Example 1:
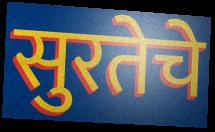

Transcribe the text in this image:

सुरतेचे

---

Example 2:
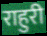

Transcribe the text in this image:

राहुरी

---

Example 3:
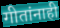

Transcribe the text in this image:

गीतांनाही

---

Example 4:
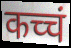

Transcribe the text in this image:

कच्चं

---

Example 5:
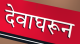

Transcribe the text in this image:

देवाघरून